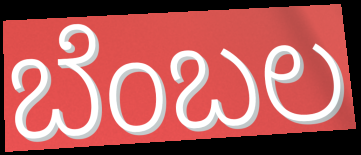
ಬೆಂಬಲ